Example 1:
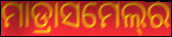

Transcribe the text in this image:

ମାଡ୍ରାସମେଲ୍‍ର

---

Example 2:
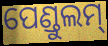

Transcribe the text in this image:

ପେଣ୍ଡୁଲମ୍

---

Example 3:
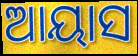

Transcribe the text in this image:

ଆୟାସ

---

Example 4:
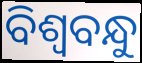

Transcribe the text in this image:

ବିଶ୍ୱବନ୍ଧୁ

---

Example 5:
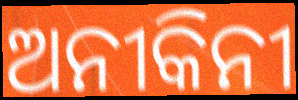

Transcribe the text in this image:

ଅନୀକିନୀ